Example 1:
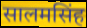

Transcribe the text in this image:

सालमसिंह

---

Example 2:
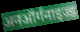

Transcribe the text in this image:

अनऑर्गनाइज्ड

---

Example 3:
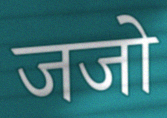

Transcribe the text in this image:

जजो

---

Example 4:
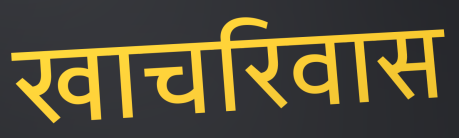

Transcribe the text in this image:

खाचरिवास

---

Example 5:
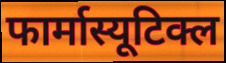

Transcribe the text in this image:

फार्मास्यूटिक्ल